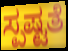
ಸ್ಪಷ್ಟತೆ